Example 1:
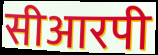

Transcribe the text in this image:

सीआरपी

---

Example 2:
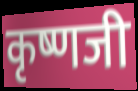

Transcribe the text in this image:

कृष्णजी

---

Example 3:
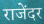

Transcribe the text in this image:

राजेंदर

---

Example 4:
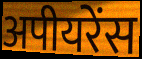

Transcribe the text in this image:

अपीयरेंस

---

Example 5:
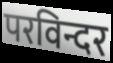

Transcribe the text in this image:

परविन्दर